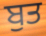
ਬੁਤ